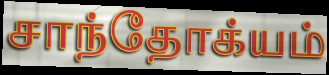
சாந்தோக்யம்